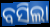
ବସିଲା